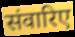
संवारिए